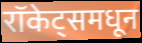
रॉकेट्समधून